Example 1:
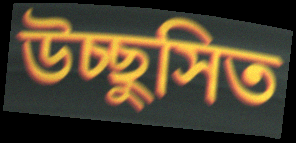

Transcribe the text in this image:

উচ্ছুসিত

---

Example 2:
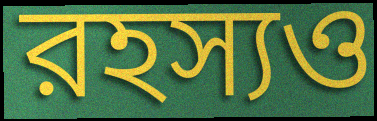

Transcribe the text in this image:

রহস্যও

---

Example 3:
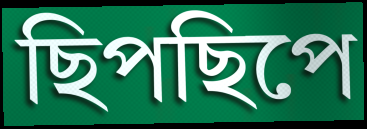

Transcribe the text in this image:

ছিপছিপে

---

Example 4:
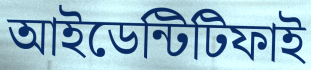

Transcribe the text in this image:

আইডেন্টিটিফাই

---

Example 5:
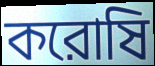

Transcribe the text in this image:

করোষি